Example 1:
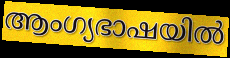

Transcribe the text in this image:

ആംഗ്യഭാഷയിൽ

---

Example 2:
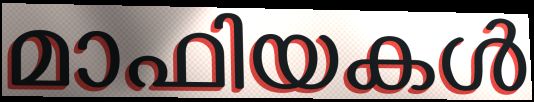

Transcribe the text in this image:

മാഫിയകൾ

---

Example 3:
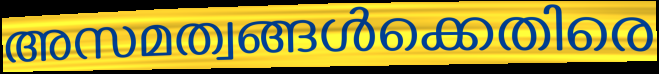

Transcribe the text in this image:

അസമത്വങ്ങൾക്കെതിരെ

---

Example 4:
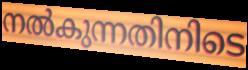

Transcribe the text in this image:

നൽകുന്നതിനിടെ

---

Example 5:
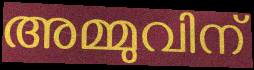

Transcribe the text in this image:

അമ്മുവിന്